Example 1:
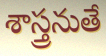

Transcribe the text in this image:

శాస్త్రనుతే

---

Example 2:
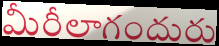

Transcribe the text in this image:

మీరీలాగందురు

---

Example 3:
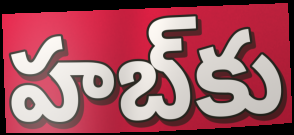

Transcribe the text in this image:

హబ్‌కు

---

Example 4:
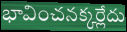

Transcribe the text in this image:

భావించనక్కర్లేదు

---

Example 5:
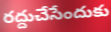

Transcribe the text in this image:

రద్దుచేసేందుకు